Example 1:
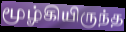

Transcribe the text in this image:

மூழ்கியிருந்த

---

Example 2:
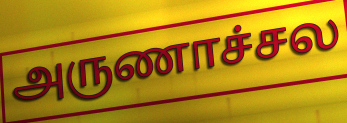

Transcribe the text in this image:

அருணாச்சல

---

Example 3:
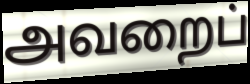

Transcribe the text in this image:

அவறைப்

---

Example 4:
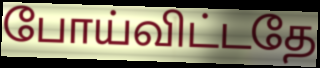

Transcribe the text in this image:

போய்விட்டதே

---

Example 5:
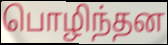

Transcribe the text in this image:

பொழிந்தன